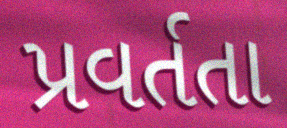
પ્રવર્તતા